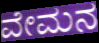
ವೇಮನ